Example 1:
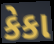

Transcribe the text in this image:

કેકા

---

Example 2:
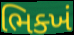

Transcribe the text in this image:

ભિક્ખં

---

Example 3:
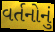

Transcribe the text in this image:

વર્તનોનું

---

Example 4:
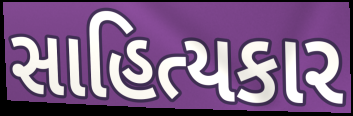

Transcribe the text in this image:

સાહિત્યકાર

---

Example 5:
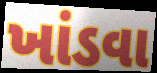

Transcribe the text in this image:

ખાંડવા